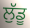
ਲੁੱਡੂ